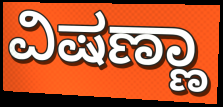
ವಿಷಣ್ಣಾ